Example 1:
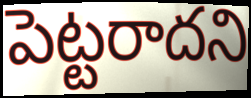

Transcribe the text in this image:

పెట్టరాదని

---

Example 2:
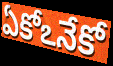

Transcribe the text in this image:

ఏకోఽనేకో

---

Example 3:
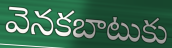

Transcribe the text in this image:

వెనకబాటుకు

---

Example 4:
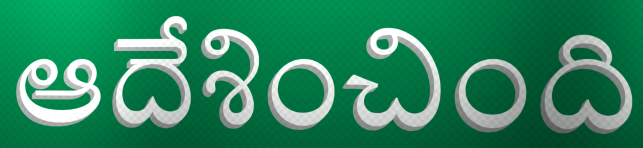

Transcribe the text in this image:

ఆదేశించింది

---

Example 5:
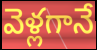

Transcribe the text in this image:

వెళ్లగానే